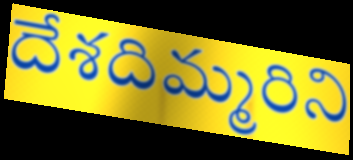
దేశదిమ్మరిని